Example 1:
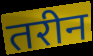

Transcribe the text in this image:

तरीन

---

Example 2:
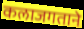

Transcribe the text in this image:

कलाजगताने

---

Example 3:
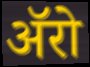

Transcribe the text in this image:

ॲरो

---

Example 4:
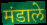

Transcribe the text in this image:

मंडाले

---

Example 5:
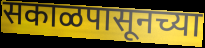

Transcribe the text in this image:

सकाळपासूनच्या